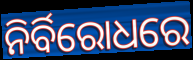
ନିର୍ବିରୋଧରେ